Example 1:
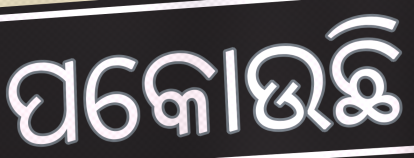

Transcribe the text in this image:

ପକୋଉଛି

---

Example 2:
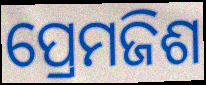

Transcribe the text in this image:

ପ୍ରେମଜିଶ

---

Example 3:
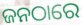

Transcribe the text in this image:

ଜନଠାରେ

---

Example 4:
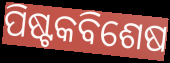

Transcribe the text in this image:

ପିଷ୍ଟକବିଶେଷ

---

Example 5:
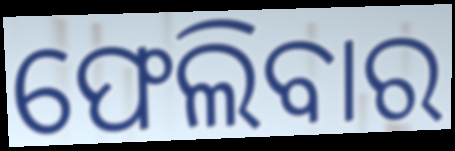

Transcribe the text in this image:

ଫେଲିବାର